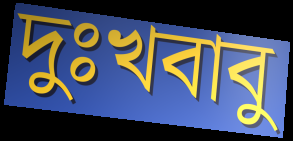
দুঃখবাবু